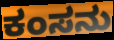
ಕಂಸನು